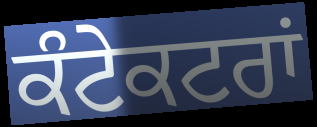
ਕੰਟੇਕਟਰਾਂ